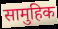
सामुहिक